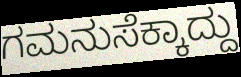
ಗಮನುಸೆಕ್ಕಾದ್ದು